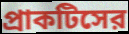
প্রাকটিসের